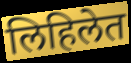
लिहिलेत